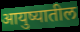
आयुष्यातील